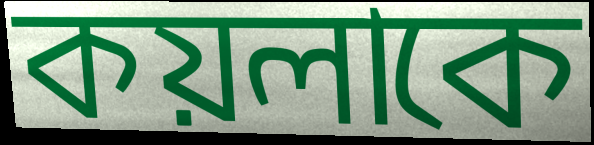
কয়লাকে